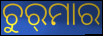
ଚୁର୍‍ମାର